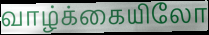
வாழ்க்கையிலோ